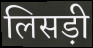
लिसड़ी